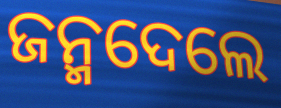
ଜନ୍ମଦେଲେ